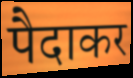
पैदाकर